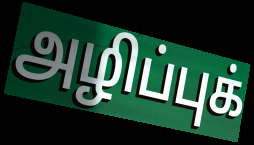
அழிப்புக்